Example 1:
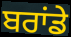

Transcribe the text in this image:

ਬਰਾਂਡੇ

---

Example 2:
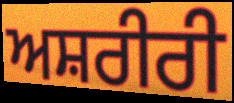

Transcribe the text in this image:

ਅਸ਼ਰੀਰੀ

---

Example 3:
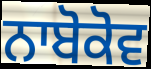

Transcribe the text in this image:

ਨਾਬੋਕੋਵ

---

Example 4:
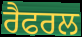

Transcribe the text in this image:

ਰੈਫਰਲ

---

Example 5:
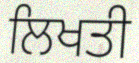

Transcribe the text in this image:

ਲਿਖਤੀ